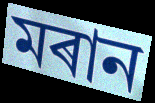
মৰান